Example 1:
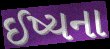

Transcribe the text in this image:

ઈષ્યના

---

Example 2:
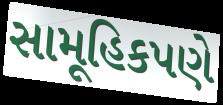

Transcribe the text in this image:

સામૂહિકપણે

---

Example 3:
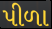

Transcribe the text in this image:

પીળા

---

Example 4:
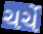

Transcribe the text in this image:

ચર્ચે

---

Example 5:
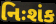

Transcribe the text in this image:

નિઃશંક